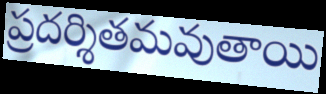
ప్రదర్శితమవుతాయి